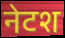
नेटश